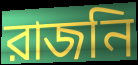
রাজনি